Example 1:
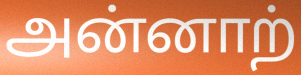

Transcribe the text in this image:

அன்னாற்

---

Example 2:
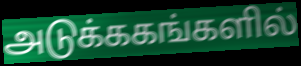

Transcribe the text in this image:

அடுக்ககங்களில்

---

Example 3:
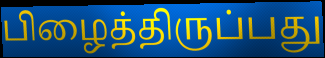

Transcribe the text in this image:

பிழைத்திருப்பது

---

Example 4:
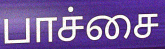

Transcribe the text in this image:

பாச்சை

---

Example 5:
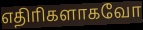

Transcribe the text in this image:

எதிரிகளாகவோ